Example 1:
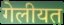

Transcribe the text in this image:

गेलीयत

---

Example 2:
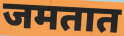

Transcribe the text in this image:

जमतात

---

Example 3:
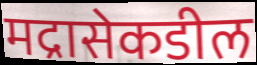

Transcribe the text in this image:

मद्रासेकडील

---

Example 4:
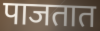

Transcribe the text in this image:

पाजतात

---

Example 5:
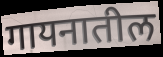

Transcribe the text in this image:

गायनातील